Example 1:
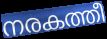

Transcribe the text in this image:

നരകത്തീ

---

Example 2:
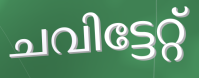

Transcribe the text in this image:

ചവിട്ടേറ്റ്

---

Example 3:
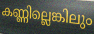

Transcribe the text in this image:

കണ്ണില്ലെങ്കിലും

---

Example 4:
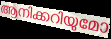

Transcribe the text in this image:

ആനിക്കറിയുമോ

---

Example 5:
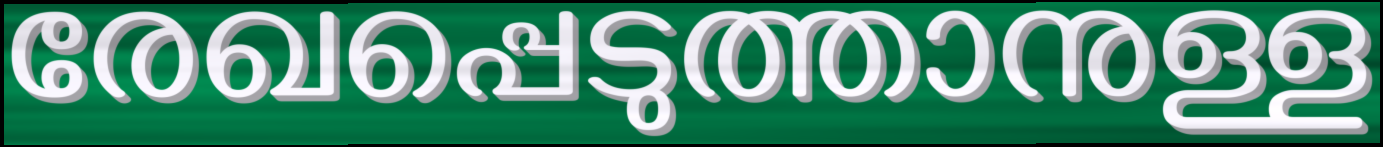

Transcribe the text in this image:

രേഖപ്പെടുത്താനുള്ള